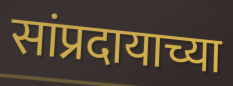
सांप्रदायाच्या